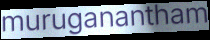
muruganantham